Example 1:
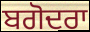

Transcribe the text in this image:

ਬਗੋਦਰਾ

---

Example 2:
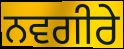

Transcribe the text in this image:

ਨਵਗੀਰੇ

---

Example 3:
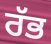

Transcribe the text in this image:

ਰੱਭ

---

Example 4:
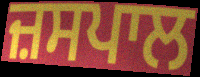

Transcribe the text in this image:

ਜ਼ਸਪਾਲ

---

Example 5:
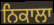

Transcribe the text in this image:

ਨਿਕਾਲਾ